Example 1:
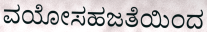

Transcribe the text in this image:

ವಯೋಸಹಜತೆಯಿಂದ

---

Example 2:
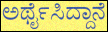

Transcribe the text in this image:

ಅರ್ಥೈಸಿದ್ದಾನೆ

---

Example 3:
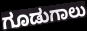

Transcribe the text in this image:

ಗೂಡುಗಾಲು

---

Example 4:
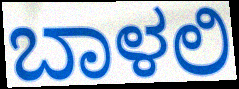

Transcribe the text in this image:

ಬಾಳಲಿ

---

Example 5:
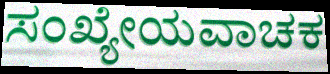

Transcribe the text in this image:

ಸಂಖ್ಯೇಯವಾಚಕ